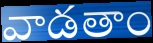
వాడతాం